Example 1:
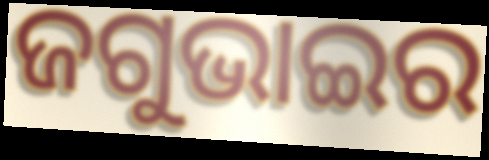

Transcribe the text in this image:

ଜଗୁଭାଇର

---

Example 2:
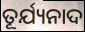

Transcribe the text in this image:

ତୂର୍ଯ୍ୟନାଦ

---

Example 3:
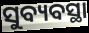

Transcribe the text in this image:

ସୁବ୍ୟବସ୍ଥା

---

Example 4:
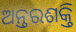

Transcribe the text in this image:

ଅନ୍ତରଶକ୍ତି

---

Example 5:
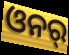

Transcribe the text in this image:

ଓନର୍